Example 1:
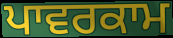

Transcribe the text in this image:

ਪਾਵਰਕਾਮ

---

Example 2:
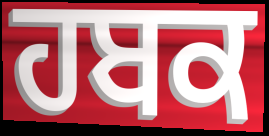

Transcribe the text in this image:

ਹਬਕ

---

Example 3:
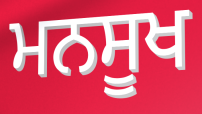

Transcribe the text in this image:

ਮਨਸੂਖ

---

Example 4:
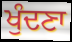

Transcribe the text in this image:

ਖੁੰਦਣਾ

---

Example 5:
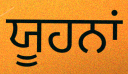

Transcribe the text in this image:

ਯੂਹਨਾਂ